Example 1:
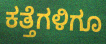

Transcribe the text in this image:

ಕತ್ತೆಗಳಿಗೂ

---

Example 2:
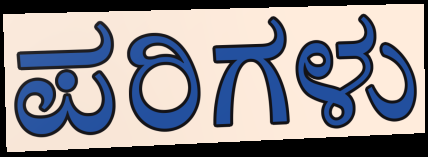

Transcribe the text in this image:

ಪರಿಗಳು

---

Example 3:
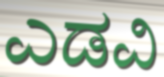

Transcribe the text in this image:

ಎಡವಿ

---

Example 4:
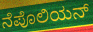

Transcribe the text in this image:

ನೆಪೊಲಿಯನ್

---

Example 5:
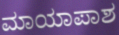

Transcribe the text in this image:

ಮಾಯಾಪಾಶ